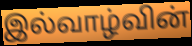
இல்வாழ்வின்